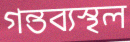
গন্তব্যস্থল